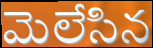
మెలేసిన